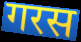
गरस